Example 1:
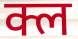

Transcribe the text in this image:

क्ल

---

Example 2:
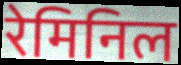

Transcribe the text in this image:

रेमिनिल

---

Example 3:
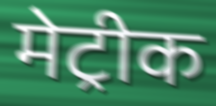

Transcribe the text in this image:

मेट्रीक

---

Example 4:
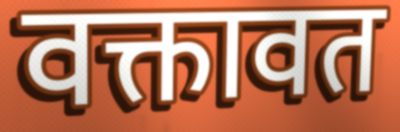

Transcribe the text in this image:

वक्तावत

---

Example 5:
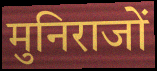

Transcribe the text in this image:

मुनिराजों